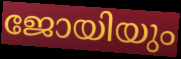
ജോയിയും